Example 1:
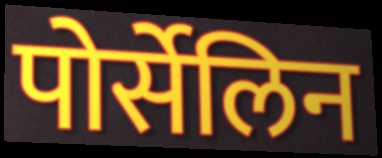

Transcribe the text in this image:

पोर्सेलिन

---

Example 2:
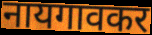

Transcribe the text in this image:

नायगावकर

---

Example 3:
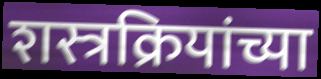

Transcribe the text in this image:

शस्त्रक्रियांच्या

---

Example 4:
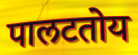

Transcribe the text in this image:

पालटतोय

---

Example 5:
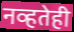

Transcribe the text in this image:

नव्हतेही